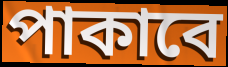
পাকাবে